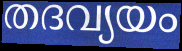
തദവ്യയം